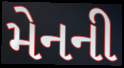
મેનની